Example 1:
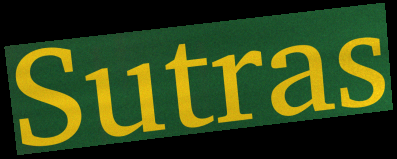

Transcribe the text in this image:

Sutras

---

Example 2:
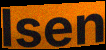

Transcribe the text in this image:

Isen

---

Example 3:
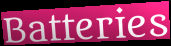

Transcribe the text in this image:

Batteries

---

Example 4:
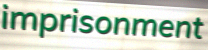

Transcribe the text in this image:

imprisonment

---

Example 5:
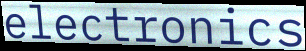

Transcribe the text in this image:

electronics